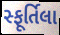
સ્ફૂર્તિલા